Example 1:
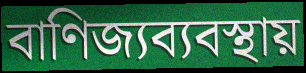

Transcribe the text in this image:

বাণিজ্যব্যবস্থায়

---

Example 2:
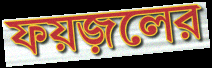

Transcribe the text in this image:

ফয়জ়লের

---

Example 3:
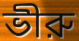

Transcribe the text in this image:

ভীরু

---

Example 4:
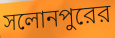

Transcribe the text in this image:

সলোনপুরের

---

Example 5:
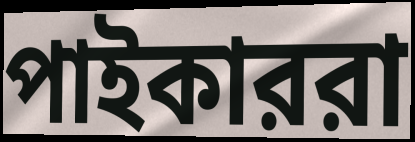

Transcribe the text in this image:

পাইকাররা